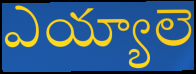
ఎయ్యాలె